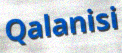
Qalanisi